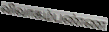
விவாகம்பண்ண